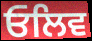
ਓਲਿਵ